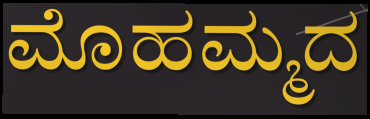
ಮೊಹಮ್ಮದ